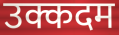
उक्कदम